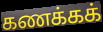
கணக்கக்